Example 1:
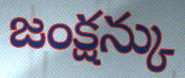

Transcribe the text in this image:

జంక్షన్కు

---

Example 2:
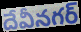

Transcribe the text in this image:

దేవీనగర్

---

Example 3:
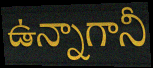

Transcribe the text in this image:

ఉన్నాగానీ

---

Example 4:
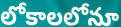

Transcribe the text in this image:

లోకాలలోనూ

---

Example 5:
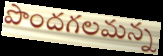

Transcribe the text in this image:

పొందగలమన్న